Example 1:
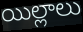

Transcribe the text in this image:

యిల్లాలు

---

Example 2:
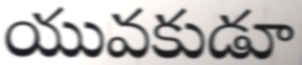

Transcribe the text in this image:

యువకుడూ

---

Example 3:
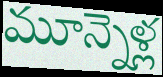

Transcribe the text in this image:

మూన్నెళ్ల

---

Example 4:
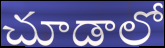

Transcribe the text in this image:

చూడాలో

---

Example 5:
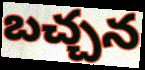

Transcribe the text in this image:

బచ్చన